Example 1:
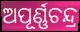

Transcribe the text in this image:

ଅପୂର୍ଣ୍ଣଚନ୍ଦ୍ର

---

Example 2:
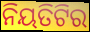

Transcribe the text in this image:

ନିୟତିଟିର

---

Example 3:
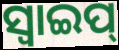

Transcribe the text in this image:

ସ୍ୱାଇପ୍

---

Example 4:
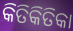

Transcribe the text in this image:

କିତିକିତିକା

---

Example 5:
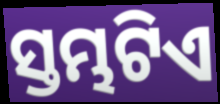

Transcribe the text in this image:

ସ୍ତମ୍ଭଟିଏ